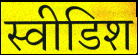
स्वीडिश